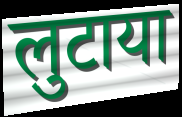
लुटाया